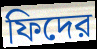
ফিদের